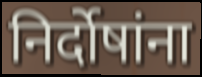
निर्दोषांना